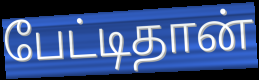
பேட்டிதான்